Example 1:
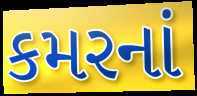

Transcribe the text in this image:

કમરનાં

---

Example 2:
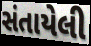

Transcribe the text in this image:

સંતાયેલી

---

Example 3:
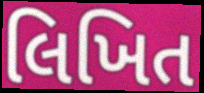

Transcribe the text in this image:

લિખિત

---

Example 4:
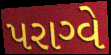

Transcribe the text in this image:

પરાગ્વે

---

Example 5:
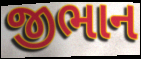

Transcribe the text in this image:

જીભાન